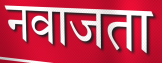
नवाजता